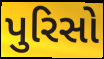
પુરિસો